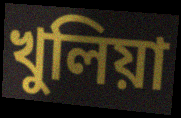
খুলিয়া